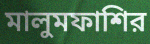
মালুমফাশির